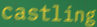
castling